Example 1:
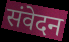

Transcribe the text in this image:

संवेदन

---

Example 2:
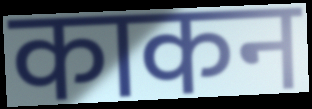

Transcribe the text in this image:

काकन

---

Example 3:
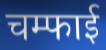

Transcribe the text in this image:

चम्फाई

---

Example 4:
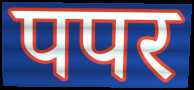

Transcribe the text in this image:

पपर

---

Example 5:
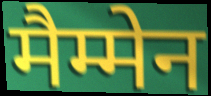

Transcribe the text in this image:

मैम्मेन